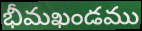
భీమఖండము